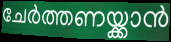
ചേർത്തണയ്ക്കാൻ